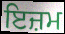
ਇਜ਼ਮ